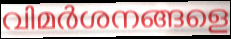
വിമർശനങ്ങളെ